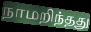
நாமறிந்தது